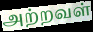
அற்றவள்